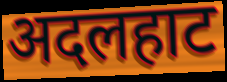
अदलहाट